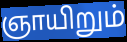
ஞாயிறும்